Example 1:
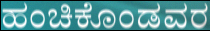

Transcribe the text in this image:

ಹಂಚಿಕೊಂಡವರ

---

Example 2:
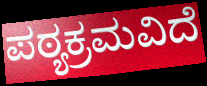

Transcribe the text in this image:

ಪಠ್ಯಕ್ರಮವಿದೆ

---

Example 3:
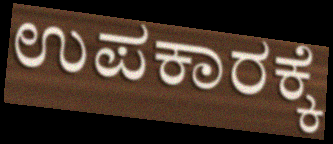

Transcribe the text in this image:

ಉಪಕಾರಕ್ಕೆ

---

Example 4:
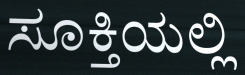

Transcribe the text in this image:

ಸೂಕ್ತಿಯಲ್ಲಿ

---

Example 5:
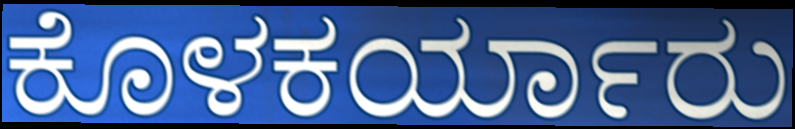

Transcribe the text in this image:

ಕೊಳಕರ್ಯಾರು